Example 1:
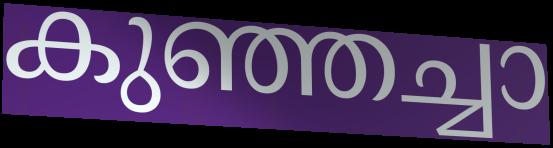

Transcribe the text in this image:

കുഞ്ഞച്ചാ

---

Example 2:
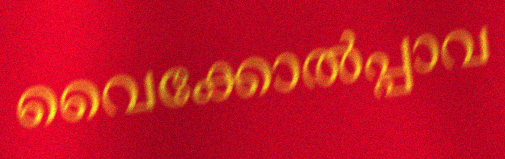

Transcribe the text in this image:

വൈക്കോൽപ്പാവ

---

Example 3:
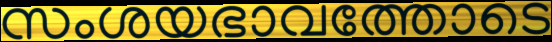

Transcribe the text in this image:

സംശയഭാവത്തോടെ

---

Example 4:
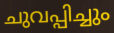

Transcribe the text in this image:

ചുവപ്പിച്ചും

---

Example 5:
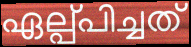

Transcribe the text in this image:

ഏല്പ്പിച്ചത്